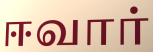
ஈவார்